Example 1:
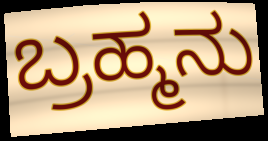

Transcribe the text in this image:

ಬ್ರಹ್ಮನು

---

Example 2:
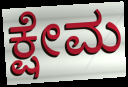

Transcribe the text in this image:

ಕ್ಷೇಮ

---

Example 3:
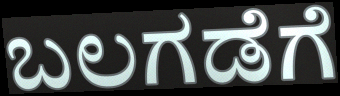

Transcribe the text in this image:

ಬಲಗಡೆಗೆ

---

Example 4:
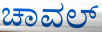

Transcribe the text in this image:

ಚಾವಲ್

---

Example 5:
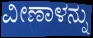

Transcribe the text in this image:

ವೀಣಾಳನ್ನು